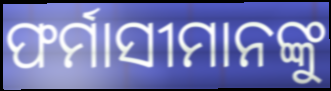
ଫର୍ମାସୀମାନଙ୍କୁ